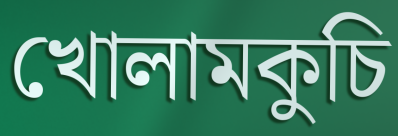
খোলামকুচি